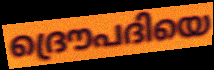
ദ്രൌപദിയെ